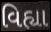
વિહ્યા